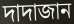
দাদাজান